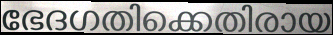
ഭേദഗതിക്കെതിരായ